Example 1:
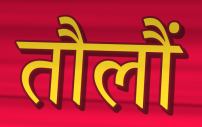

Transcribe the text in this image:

तौलौं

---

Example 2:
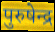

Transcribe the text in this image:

पुरुषेन्द्र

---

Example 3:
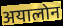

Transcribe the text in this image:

अयालोन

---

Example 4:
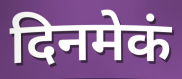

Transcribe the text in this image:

दिनमेकं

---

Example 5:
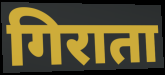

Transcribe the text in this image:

गिराता